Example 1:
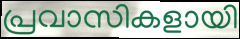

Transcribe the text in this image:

പ്രവാസികളായി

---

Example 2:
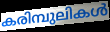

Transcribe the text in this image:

കരിമ്പുലികൾ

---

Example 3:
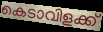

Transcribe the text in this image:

കെടാവിളക്ക്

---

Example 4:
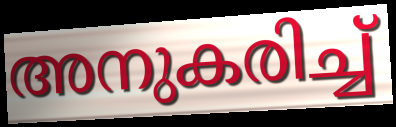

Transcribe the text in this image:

അനുകരിച്ച്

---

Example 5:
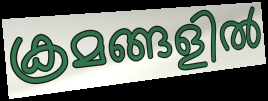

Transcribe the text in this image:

ക്രമങ്ങളിൽ